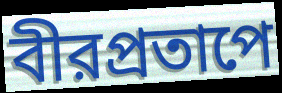
বীরপ্রতাপে